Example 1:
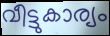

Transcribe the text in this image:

വീട്ടുകാര്യം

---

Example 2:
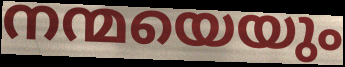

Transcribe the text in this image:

നന്മയെയും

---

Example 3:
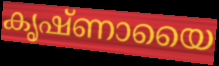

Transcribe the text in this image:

കൃഷ്ണായൈ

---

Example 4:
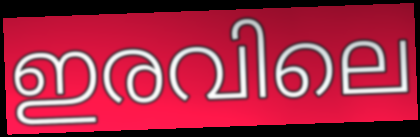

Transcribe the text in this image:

ഇരവിലെ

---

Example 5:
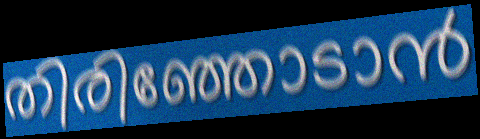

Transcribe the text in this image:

തിരിഞ്ഞോടാൻ